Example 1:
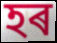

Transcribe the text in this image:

হৰ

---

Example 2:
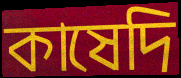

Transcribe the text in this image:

কাষেদি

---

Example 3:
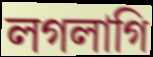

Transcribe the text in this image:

লগলাগি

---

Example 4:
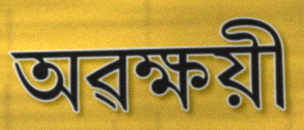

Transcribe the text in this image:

অৱক্ষয়ী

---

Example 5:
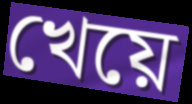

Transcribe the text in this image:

খেয়ে